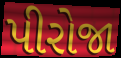
પીરોજા